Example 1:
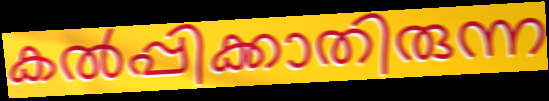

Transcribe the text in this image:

കൽപ്പിക്കാതിരുന്ന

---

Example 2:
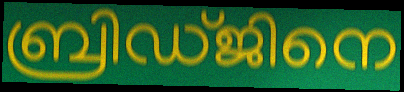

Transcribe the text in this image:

ബ്രിഡ്ജിനെ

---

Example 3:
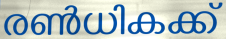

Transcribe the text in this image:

രൺധികക്ക്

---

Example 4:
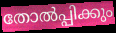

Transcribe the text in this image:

തോൽപ്പിക്കും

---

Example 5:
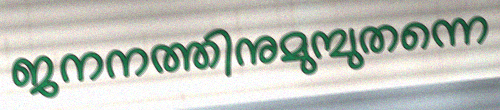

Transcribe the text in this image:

ജനനത്തിനുമുമ്പുതന്നെ